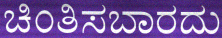
ಚಿಂತಿಸಬಾರದು